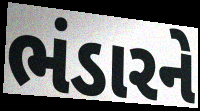
ભંડારને